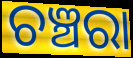
ଚଞ୍ଚରା